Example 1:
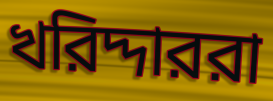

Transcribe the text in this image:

খরিদ্দাররা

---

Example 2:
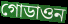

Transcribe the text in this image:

গোডাওন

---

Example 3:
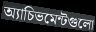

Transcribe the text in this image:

অ্যাচিভমেন্টগুলো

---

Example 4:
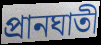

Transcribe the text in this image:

প্রানঘাতী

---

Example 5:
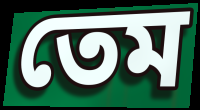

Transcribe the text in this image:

তেম